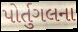
પોર્તુગલના